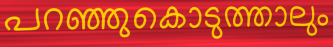
പറഞ്ഞുകൊടുത്താലും